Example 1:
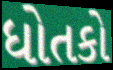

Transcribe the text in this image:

ધોતકો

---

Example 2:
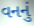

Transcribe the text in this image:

વનનું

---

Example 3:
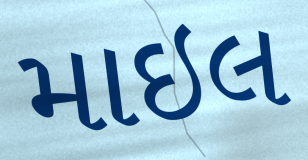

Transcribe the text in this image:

માઇલ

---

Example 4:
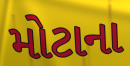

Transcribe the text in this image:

મોટાના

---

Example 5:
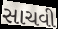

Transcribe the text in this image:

સાચવી